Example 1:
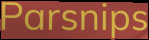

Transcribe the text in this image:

Parsnips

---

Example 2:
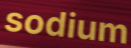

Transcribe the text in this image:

sodium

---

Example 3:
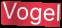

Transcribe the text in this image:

Vogel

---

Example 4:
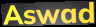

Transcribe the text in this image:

Aswad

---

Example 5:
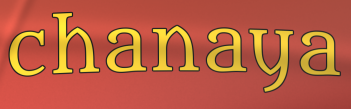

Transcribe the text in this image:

chanaya